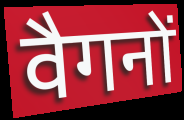
वैगनों